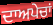
ਦਾਅਪੇਚਾਂ